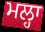
ਮਲ੍ਹਾ